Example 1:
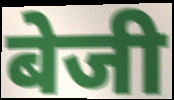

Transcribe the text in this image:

बेजी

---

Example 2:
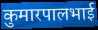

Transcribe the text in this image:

कुमारपालभाई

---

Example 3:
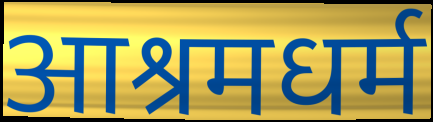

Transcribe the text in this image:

आश्रमधर्म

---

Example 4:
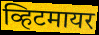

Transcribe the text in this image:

व्हिटमायर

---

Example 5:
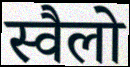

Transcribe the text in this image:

स्वैलो